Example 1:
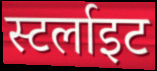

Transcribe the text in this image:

स्टर्लाइट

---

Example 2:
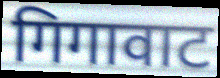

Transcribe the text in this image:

गिगावाट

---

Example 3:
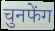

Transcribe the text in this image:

चुनफेंग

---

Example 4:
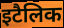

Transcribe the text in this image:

इटैलिक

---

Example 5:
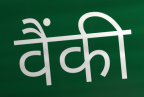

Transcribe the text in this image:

वैंकी